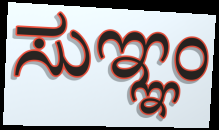
ಸುಞ್ಞಂ